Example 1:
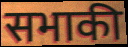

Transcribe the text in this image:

सभाकी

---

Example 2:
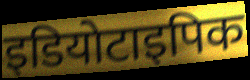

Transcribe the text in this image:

इडियोटाइपिक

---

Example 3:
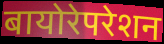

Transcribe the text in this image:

बायोरेपरेशन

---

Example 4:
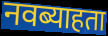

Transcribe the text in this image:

नवब्याहता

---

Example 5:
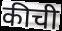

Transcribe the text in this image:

कीची